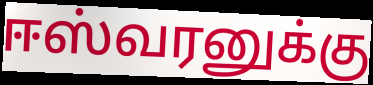
ஈஸ்வரனுக்கு